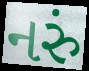
નરું